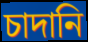
চাদানি